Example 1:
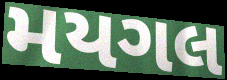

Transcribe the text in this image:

મયગલ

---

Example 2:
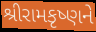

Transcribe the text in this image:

શ્રીરામકૃષ્ણને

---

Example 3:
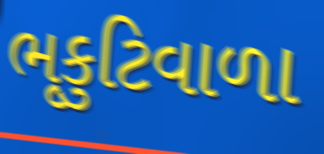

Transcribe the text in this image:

ભૃકુટિવાળા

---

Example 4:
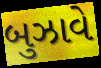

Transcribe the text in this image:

બુઝાવે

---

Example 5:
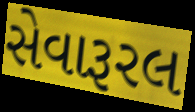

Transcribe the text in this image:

સેવારૂરલ